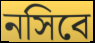
নসিবে